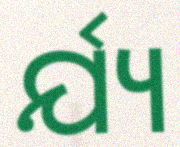
ର୍ଯ୍ୟ